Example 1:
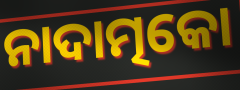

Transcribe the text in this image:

ନାଦାତ୍ମକୋ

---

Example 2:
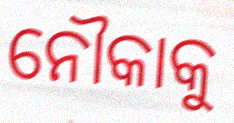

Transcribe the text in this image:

ନୌକାକୁ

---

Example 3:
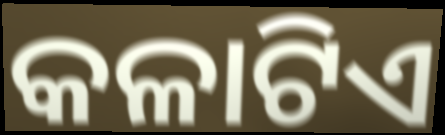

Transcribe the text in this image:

କଳାଟିଏ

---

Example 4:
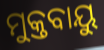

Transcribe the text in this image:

ମୁକ୍ତବାୟୁ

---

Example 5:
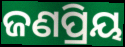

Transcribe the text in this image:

ଜଣପ୍ରିୟ